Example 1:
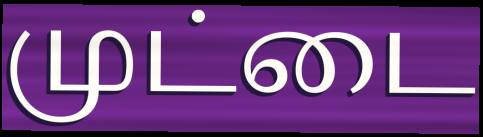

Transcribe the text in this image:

முட்டை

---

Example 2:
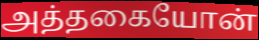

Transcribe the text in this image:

அத்தகையோன்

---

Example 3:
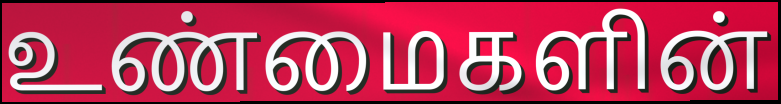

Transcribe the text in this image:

உண்மைகளின்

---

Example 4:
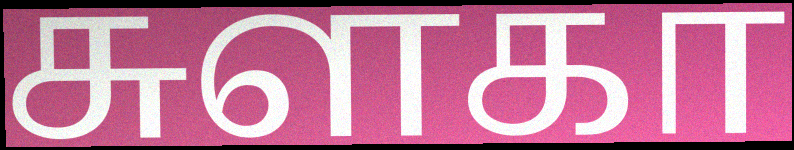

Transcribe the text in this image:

சுளகா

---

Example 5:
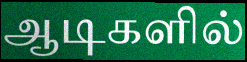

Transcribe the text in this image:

ஆடிகளில்